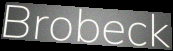
Brobeck